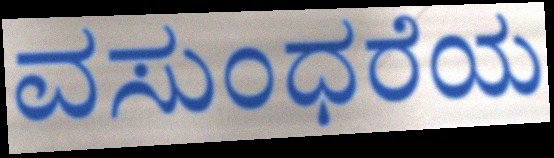
ವಸುಂಧರೆಯ